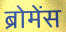
ब्रोमेंस